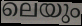
ലെയും